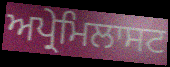
ਅਪ੍ਰੇਮਿਲਾਸਟ